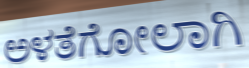
ಅಳತೆಗೋಲಾಗಿ